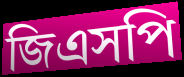
জিএসপি